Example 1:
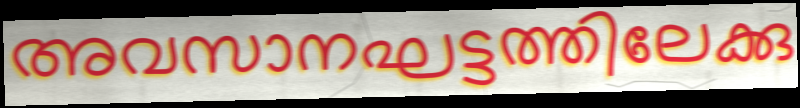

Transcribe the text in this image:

അവസാനഘട്ടത്തിലേക്കു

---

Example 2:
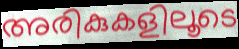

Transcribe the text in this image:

അരികുകളിലൂടെ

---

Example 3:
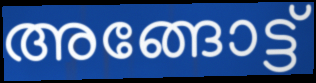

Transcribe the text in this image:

അങ്ങോട്ട്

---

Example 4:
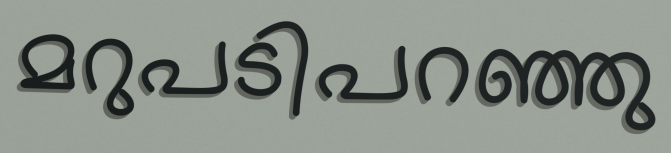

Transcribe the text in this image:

മറുപടിപറഞ്ഞു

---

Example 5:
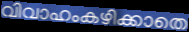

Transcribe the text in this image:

വിവാഹംകഴിക്കാതെ